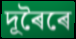
দূৰৈৰে